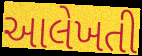
આલેખતી